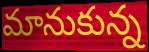
మానుకున్న